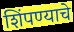
शिंपण्याचे